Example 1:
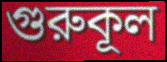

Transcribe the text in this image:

গুরুকূল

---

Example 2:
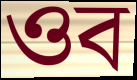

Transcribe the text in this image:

ওব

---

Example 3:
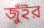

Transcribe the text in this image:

জুঁইর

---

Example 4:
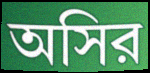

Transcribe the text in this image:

অসির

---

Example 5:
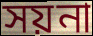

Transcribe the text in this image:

সয়না